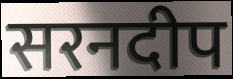
सरनदीप